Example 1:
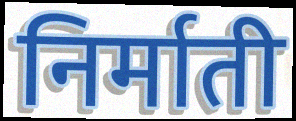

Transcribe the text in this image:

निर्माती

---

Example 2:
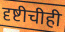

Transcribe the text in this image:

दृष्टीचीही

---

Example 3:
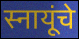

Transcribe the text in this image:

स्नायूंचे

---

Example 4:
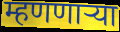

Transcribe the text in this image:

म्हणणार्‍या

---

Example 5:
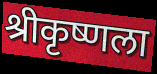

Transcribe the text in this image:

श्रीकृष्णला